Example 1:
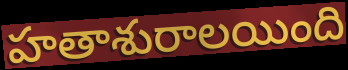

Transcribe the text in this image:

హతాశురాలయింది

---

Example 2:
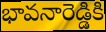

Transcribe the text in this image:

భావనారెడ్డికి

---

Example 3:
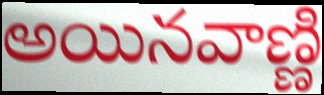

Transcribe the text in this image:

అయినవాణ్ణి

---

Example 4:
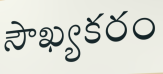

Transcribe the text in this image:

సౌఖ్యకరం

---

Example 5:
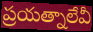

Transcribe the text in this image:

ప్రయత్నాలేవీ